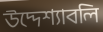
উদ্দেশ্যাবলি